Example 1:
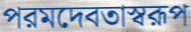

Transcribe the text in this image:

পরমদেবতাস্বরূপ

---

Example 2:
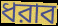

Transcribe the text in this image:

ধরাব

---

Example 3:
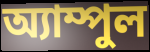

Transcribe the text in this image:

অ্যাম্পুল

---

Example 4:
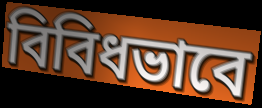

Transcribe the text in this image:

বিবিধভাবে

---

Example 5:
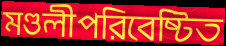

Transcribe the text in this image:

মণ্ডলীপরিবেষ্টিত